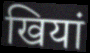
खियां